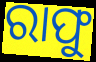
ରାଫୁ